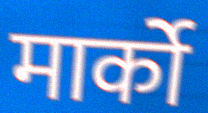
मार्को